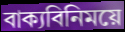
বাক্যবিনিময়ে